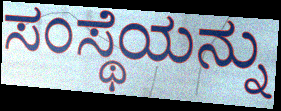
ಸಂಸ್ಥೆಯನ್ನು